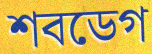
শবডেগ